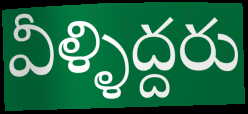
వీళ్ళిద్దరు